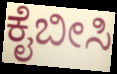
ಕೈಬೀಸಿ